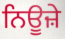
ਨਿਊਜ਼ੇ